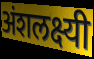
अंशलक्ष्यी